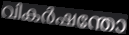
വികർഷന്തോ